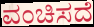
ವಂಚಿಸದೆ